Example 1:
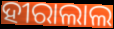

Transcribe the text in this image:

ହୀରାଲାଲ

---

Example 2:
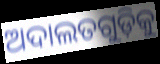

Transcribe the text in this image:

ଅଦାଲତଗୁଡ଼ିକୁ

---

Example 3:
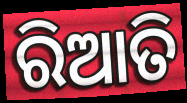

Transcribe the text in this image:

ରିଆତି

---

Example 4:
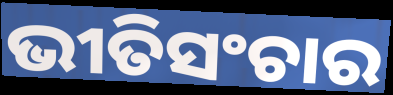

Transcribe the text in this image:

ଭୀତିସଂଚାର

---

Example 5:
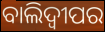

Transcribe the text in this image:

ବାଲିଦ୍ୱୀପର